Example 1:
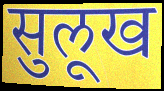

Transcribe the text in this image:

सुलूख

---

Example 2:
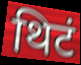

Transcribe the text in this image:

थिटं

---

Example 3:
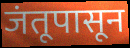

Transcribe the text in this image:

जंतूपासून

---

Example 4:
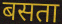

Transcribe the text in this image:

बसता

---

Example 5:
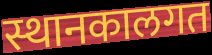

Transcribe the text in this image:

स्थानकालगत